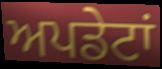
ਅਪਡੇਟਾਂ